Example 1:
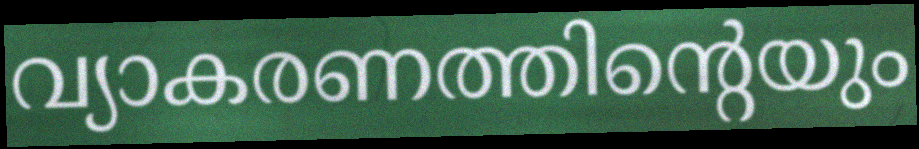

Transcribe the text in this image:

വ്യാകരണത്തിന്റെയും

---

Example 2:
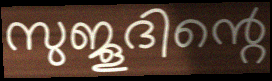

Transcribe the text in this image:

സുജൂദിന്റെ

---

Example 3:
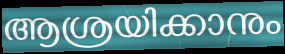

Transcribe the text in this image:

ആശ്രയിക്കാനും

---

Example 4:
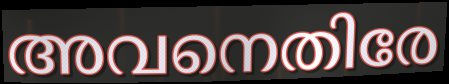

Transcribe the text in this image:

അവനെതിരേ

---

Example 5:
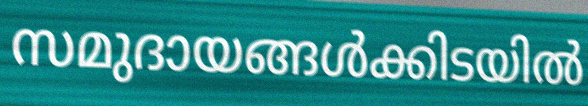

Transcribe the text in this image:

സമുദായങ്ങൾക്കിടയിൽ